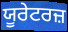
ਯੂਰੇਟਰਜ਼